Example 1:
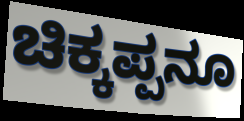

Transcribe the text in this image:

ಚಿಕ್ಕಪ್ಪನೂ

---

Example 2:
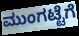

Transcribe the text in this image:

ಮುಂಗಟ್ಟೆಗೆ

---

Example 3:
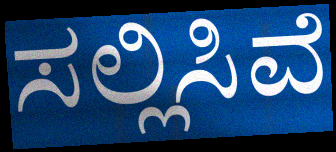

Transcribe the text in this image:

ಸಲ್ಲಿಸಿವೆ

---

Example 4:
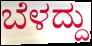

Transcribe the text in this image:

ಬೆಳದ್ದು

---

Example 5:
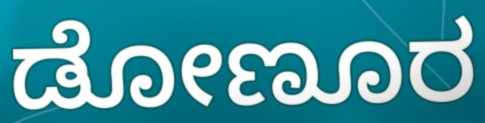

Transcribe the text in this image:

ಡೋಣೂರ